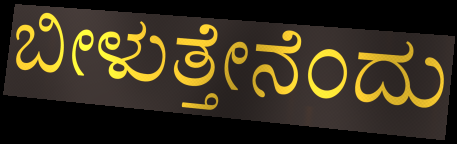
ಬೀಳುತ್ತೇನೆಂದು